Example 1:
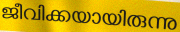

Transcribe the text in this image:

ജീവിക്കയായിരുന്നു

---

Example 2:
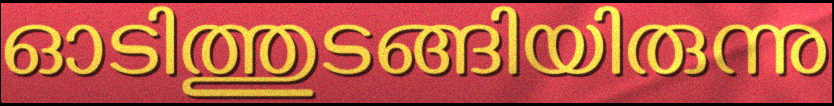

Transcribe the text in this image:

ഓടിത്തുടങ്ങിയിരുന്നു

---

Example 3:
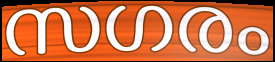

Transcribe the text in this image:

സഗരം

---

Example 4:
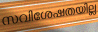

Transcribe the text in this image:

സവിശേഷതയില്ല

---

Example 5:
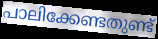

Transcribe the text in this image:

പാലിക്കേണ്ടതുണ്ട്